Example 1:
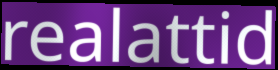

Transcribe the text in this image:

realattid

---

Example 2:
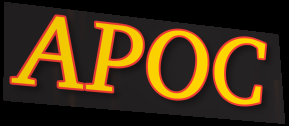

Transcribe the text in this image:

APOC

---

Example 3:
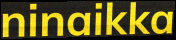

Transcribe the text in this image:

ninaikka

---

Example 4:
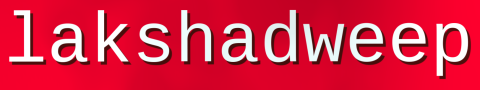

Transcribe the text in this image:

lakshadweep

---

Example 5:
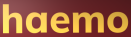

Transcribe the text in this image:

haemo